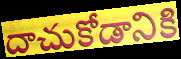
దాచుకోడానికి